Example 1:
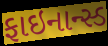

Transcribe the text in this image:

ફાઇનાન્સ્ડ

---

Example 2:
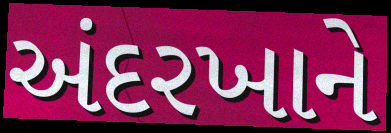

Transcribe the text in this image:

અંદરખાને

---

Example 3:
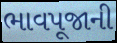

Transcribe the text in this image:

ભાવપૂજાની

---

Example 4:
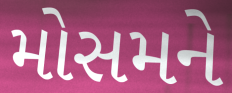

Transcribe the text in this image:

મોસમને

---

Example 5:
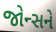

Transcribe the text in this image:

જોન્સને